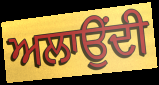
ਅਲਾਉਂਦੀ